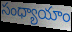
సంధ్యాయాం